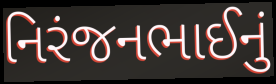
નિરંજનભાઈનું